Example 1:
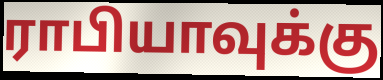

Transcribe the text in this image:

ராபியாவுக்கு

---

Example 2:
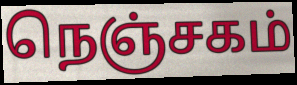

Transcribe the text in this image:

நெஞ்சகம்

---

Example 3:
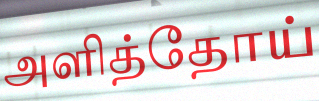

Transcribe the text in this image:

அளித்தோய்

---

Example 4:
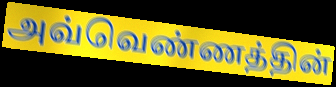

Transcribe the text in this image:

அவ்வெண்ணத்தின்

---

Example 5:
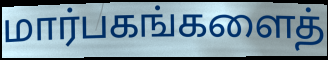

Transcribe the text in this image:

மார்பகங்களைத்